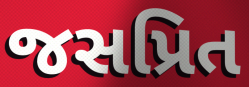
જસપ્રિત